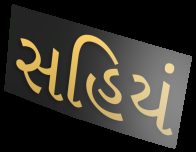
સહિયં